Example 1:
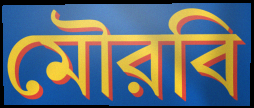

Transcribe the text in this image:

মৌরবি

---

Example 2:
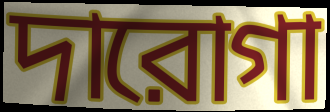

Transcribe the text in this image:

দারোগা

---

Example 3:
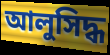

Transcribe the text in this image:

আলুসিদ্ধ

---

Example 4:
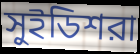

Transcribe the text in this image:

সুইডিশরা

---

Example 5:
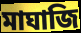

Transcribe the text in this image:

মাঘাজি